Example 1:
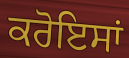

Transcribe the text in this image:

ਕਰੋਇਸਾਂ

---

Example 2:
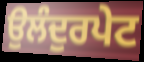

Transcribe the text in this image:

ਉਲੰਦੁਰਪੇਟ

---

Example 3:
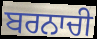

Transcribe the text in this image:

ਬਰਨਾਚੀ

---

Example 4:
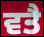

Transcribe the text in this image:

ਵਤੈ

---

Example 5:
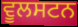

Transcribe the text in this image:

ਵੂਲਸਟਨ